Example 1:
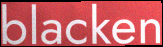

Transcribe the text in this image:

blacken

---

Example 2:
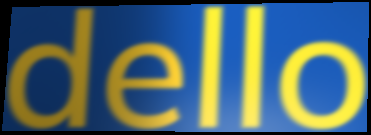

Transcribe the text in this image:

dello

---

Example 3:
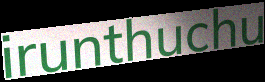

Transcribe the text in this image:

irunthuchu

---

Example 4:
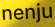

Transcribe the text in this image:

nenju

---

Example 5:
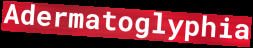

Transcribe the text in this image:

Adermatoglyphia